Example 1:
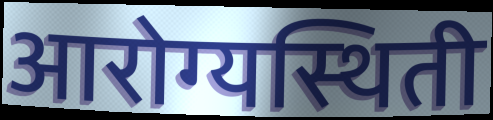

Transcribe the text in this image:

आरोग्यस्थिती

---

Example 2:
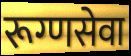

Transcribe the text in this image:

रूग्णसेवा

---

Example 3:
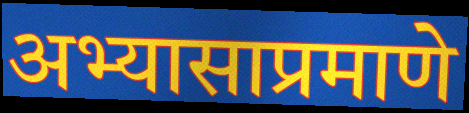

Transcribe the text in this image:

अभ्यासाप्रमाणे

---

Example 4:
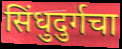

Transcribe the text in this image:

सिंधुदुर्गचा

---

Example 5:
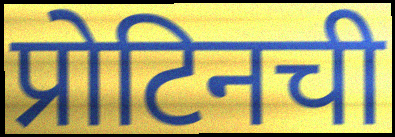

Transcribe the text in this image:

प्रोटिनची